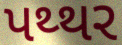
પથ્થર